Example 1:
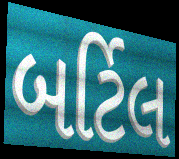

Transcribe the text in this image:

બર્ટિલ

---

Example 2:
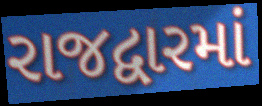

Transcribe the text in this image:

રાજદ્વારમાં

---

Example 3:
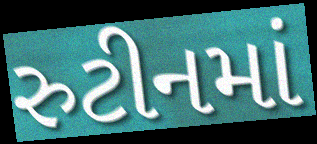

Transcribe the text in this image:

રુટીનમાં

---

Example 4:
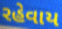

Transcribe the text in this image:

રહેવાય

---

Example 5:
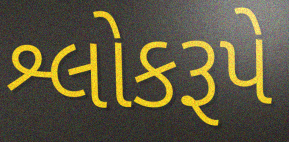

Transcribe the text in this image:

શ્લોકરૂપે